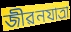
জীৱনযাত্ৰা